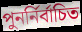
পুনর্নির্বাচিত